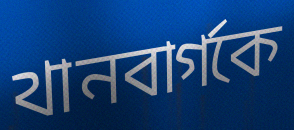
থানবার্গকে